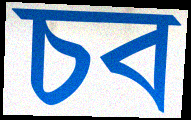
চব